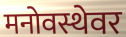
मनोवस्थेवर